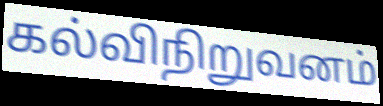
கல்விநிறுவனம்